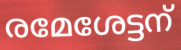
രമേശേട്ടന്